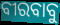
ବୀରବାବୁ